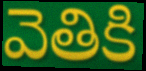
వెతికి